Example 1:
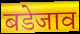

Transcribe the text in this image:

बडेजाव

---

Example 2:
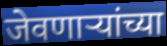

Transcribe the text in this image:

जेवणाऱ्यांच्या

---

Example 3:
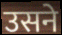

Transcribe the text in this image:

उसने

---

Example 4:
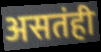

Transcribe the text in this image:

असतंही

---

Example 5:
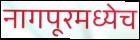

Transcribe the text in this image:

नागपूरमध्येच